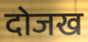
दोजख